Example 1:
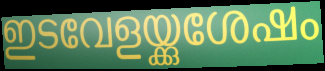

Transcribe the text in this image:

ഇടവേളയ്ക്കുശേഷം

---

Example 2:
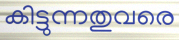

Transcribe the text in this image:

കിട്ടുന്നതുവരെ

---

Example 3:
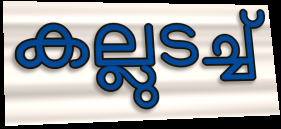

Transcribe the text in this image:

കല്ലുടച്ച്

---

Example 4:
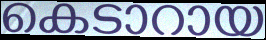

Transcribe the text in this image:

കെടാറായ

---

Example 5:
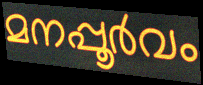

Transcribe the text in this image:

മനപ്പൂർവം